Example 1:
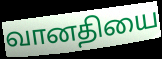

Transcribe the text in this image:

வானதியை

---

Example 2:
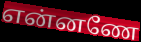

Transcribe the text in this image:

என்னணே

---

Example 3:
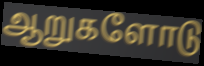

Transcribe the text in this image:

ஆறுகளோடு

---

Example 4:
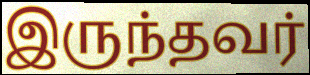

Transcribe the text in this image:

இருந்தவர்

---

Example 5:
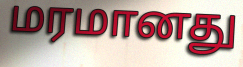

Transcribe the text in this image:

மரமானது